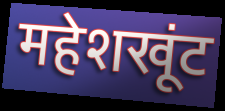
महेशखूंट